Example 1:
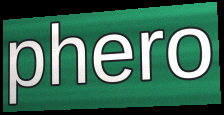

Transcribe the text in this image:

phero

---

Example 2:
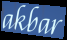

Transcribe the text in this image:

akbar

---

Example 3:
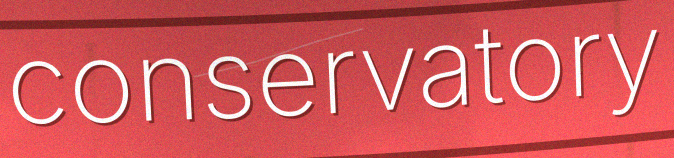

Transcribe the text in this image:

conservatory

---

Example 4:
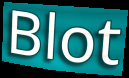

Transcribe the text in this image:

Blot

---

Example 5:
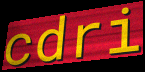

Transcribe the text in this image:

cdri